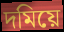
দমিয়ে